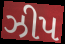
ઝીપ